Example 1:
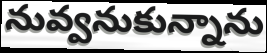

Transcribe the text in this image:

నువ్వనుకున్నాను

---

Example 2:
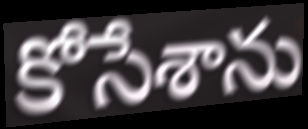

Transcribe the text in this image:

కోసేశాను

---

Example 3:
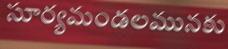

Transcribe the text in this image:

సూర్యమండలమునకు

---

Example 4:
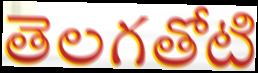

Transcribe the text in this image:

తెలగతోటి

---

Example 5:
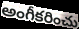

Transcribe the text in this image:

అంగీకరించు